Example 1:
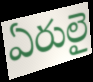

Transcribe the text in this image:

ఏరులై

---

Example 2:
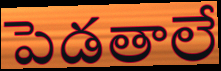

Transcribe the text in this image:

పెడతాలే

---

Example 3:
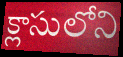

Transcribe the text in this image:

క్లాసులోని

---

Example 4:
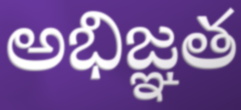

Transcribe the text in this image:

అభిజ్ఞత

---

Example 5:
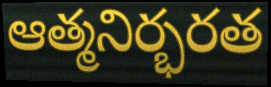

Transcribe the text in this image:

ఆత్మనిర్భరత